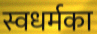
स्वधर्मका